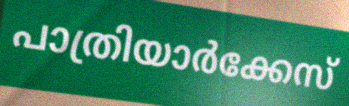
പാത്രിയാർക്കേസ്